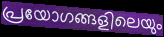
പ്രയോഗങ്ങളിലെയും